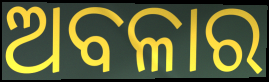
ଅବଳାର